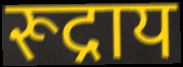
रूद्राय